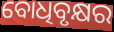
ବୋଧିବୃକ୍ଷର